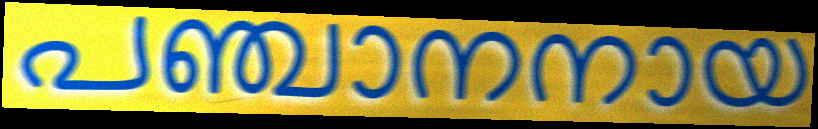
പഞ്ചാനനായ